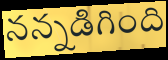
నన్నడిగింది